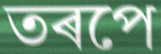
তৰপে